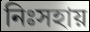
নিঃসহায়